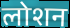
लोशन